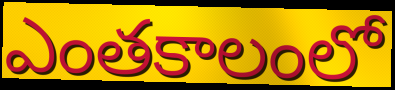
ఎంతకాలంలో